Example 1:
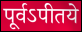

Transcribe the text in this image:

पूर्वऽपीतये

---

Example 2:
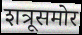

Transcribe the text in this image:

शत्रूसमोर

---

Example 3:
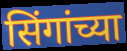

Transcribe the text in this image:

सिंगांच्या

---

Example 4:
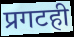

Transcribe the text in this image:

प्रगटही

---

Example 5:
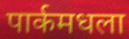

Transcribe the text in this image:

पार्कमधला